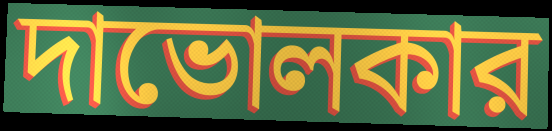
দাভোলকার